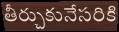
తీర్చుకునేసరికి